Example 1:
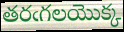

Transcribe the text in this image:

తరఁగలయొక్క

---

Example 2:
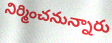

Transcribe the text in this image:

నిర్మించనున్నారు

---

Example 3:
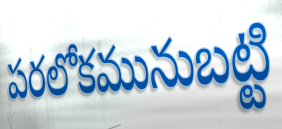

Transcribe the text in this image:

పరలోకమునుబట్టి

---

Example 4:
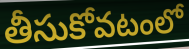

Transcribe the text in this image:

తీసుకోవటంలో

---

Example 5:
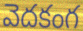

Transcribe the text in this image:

వెదకంగ